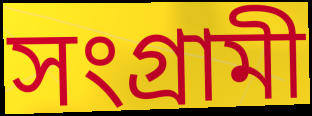
সংগ্ৰামী